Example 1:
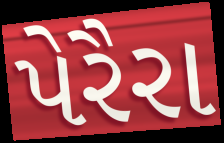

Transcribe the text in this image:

પેરૈરા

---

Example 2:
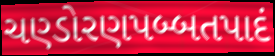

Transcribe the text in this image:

ચણ્ડોરણપબ્બતપાદં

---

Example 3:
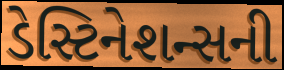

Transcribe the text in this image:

ડેસ્ટિનેશન્સની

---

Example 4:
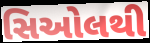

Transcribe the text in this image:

સિઓલથી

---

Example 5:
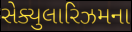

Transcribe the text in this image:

સેક્યુલારિઝમના